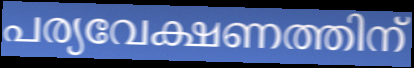
പര്യവേക്ഷണത്തിന്